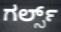
ಗರ್ಲ್ಸ್